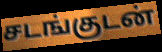
சடங்குடன்